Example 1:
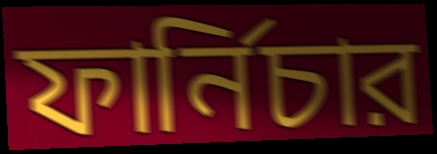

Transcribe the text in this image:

ফার্নিচার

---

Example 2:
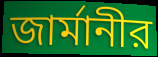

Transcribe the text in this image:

জার্মানীর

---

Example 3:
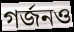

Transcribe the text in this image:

গর্জনও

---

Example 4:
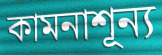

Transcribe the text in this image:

কামনাশূন্য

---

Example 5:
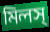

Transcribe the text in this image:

মিলস্